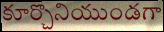
కూర్చొనియుండగా